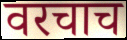
वरचाच